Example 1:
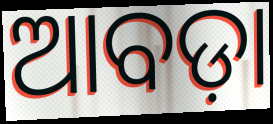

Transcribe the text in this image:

ଆବଡ଼ା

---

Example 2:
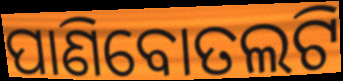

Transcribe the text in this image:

ପାଣିବୋତଲଟି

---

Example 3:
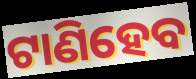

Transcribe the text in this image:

ଟାଣିହେବ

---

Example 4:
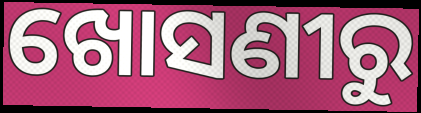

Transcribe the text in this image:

ଖୋସଣୀରୁ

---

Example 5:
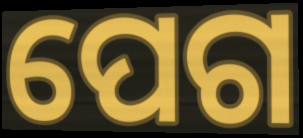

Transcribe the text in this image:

ପେଗ